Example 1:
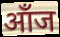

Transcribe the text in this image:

आँज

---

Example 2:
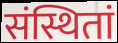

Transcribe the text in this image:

संस्थितां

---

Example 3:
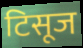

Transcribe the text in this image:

टिसूज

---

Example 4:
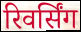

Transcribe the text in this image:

रिवर्सिंग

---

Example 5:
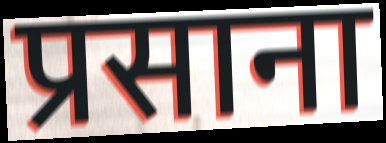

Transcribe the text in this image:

प्रसाना